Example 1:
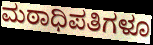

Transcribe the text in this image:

ಮಠಾಧಿಪತಿಗಳೂ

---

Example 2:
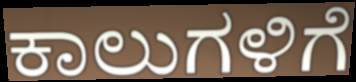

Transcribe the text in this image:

ಕಾಲುಗಳಿಗೆ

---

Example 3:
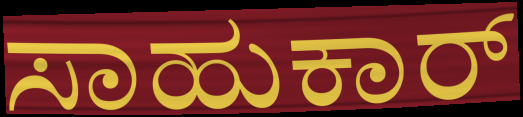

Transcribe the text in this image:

ಸಾಹುಕಾರ್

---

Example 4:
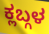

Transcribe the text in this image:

ಕ್ಲಬ್ಗಳ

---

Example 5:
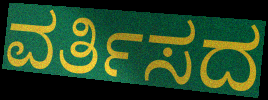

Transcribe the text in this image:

ವರ್ತಿಸದ